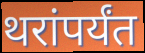
थरांपर्यंत